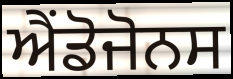
ਐਂਡੋਜੋਨਸ